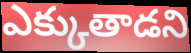
ఎక్కుతాడని